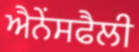
ਐਨੇਂਸਫੈਲੀ